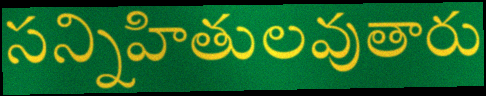
సన్నిహితులవుతారు